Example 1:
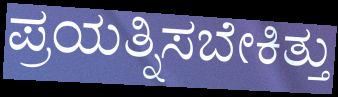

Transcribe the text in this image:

ಪ್ರಯತ್ನಿಸಬೇಕಿತ್ತು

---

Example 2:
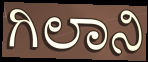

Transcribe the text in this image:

ಗಿಲಾನಿ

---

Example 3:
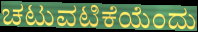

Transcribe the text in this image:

ಚಟುವಟಿಕೆಯೆಂದು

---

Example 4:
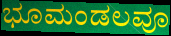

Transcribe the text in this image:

ಭೂಮಂಡಲವೂ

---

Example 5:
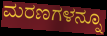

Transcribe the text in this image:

ಮರಣಗಳನ್ನೂ